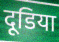
दूडिया